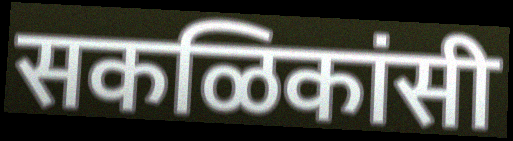
सकळिकांसी